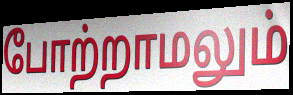
போற்றாமலும்